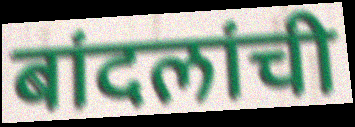
बांदलांची